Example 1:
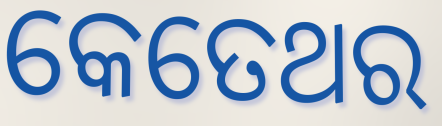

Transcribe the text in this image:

କେତେଥର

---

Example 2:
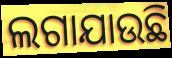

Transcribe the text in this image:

ଲଗାଯାଉଛି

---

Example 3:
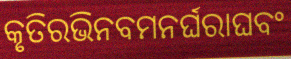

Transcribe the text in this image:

କୃତିରଭିନବମନର୍ଘରାଘବଂ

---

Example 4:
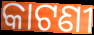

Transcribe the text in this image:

କାଟଣୀ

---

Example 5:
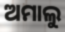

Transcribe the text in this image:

ଅମାଲୁ